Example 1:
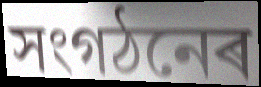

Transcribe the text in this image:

সংগঠনেৰ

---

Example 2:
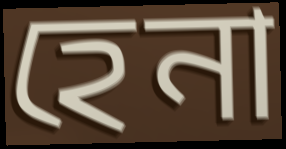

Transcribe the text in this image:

হেনা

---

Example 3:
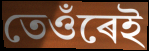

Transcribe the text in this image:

তেওঁৰেই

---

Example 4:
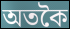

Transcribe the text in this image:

অতকৈ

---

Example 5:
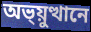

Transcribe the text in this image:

অভ্য়ুত্থানে